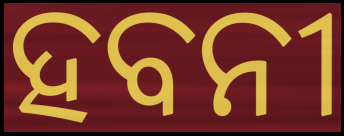
ହବନୀ